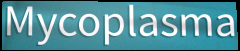
Mycoplasma